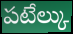
పటేల్కు